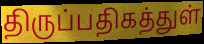
திருப்பதிகத்துள்